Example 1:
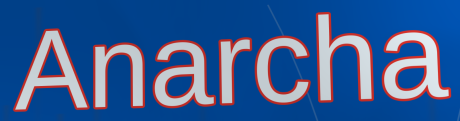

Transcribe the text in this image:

Anarcha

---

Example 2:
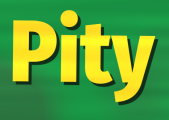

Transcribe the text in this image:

Pity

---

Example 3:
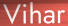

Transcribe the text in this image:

Vihar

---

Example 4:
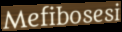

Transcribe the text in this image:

Mefibosesi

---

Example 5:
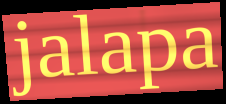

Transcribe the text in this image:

jalapa